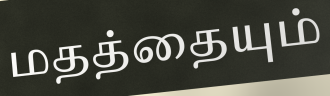
மதத்தையும்